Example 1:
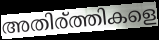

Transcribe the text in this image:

അതിര്ത്തികളെ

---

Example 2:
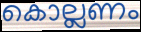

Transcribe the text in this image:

കൊല്ലണം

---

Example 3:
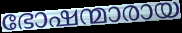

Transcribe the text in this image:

ഭോഷന്മാരായ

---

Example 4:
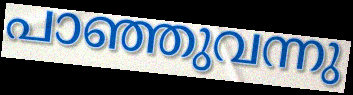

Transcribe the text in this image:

പാഞ്ഞുവന്നു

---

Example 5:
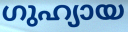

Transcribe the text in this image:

ഗുഹ്യായ